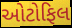
ઓટોફિલ